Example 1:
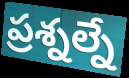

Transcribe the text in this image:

ప్రశ్నల్నే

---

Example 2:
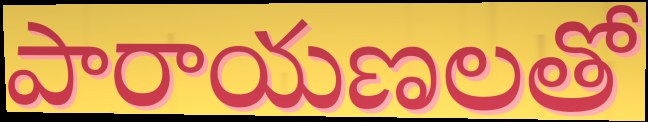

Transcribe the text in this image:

పారాయణలతో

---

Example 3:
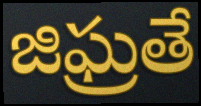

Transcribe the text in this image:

జిఘ్రతే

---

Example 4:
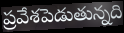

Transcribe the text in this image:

ప్రవేశపెడుతున్నది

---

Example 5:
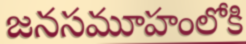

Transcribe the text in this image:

జనసమూహంలోకి